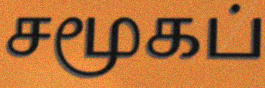
சமூகப்